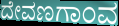
ದೇವಣಗಾಂವ